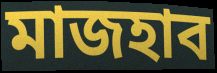
মাজহাব